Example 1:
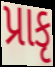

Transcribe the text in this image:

પ્રાકૃ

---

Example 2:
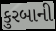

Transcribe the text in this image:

કુરબાની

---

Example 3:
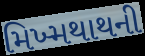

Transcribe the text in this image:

મિખ્મથાથની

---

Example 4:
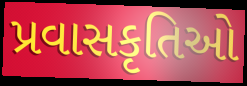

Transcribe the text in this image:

પ્રવાસકૃતિઓ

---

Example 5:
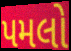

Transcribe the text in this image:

પમલો